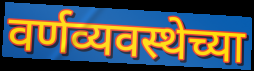
वर्णव्यवस्थेच्या